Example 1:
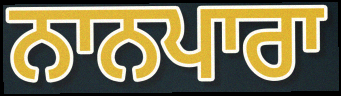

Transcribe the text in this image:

ਨਾਨਪਾਰਾ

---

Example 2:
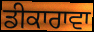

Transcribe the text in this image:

ਡੀਕਾਰਾਵਾ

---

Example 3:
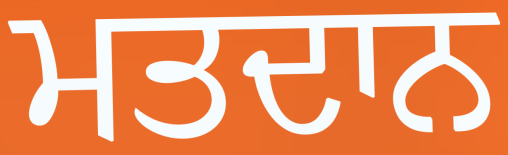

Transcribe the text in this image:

ਮਤਦਾਨ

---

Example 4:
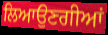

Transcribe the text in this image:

ਲਿਆਉਣਗੀਆਂ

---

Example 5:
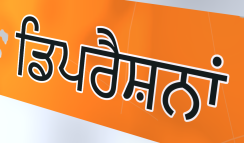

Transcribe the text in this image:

ਡਿਪਰੈਸ਼ਨਾਂ